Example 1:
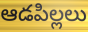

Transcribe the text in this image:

ఆడపిల్లలు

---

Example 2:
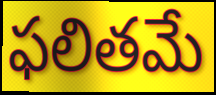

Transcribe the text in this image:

ఫలితమే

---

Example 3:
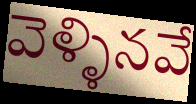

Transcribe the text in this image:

వెళ్ళినవే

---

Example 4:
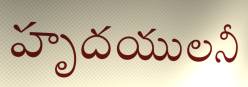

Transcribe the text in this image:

హృదయులనీ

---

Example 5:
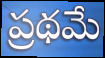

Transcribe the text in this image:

ప్రథమే